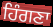
ਹਿੰਗਣਾ